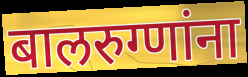
बालरुग्णांना